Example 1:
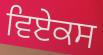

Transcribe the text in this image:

ਵਿਏਕਸ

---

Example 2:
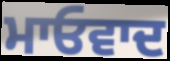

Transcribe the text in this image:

ਮਾਓਵਾਦ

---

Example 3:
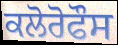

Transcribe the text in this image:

ਕਲੋਰੋਫੌਸ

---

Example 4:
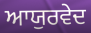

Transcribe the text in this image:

ਆਯੁਰਵੇਦ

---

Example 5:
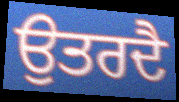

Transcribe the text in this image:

ਉਤਰਦੈ